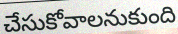
చేసుకోవాలనుకుంది